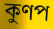
কুণপ